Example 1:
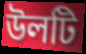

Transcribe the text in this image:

উলটি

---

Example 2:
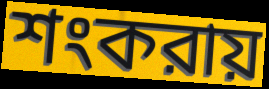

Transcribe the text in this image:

শংকরায়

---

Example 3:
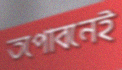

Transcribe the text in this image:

তপোবনেই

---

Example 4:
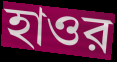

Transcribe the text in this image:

হাওর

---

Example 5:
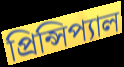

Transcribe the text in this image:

প্রিন্সিপ্যাল